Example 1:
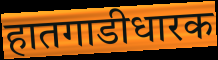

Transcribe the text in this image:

हातगाडीधारक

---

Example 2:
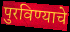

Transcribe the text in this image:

पुरविण्याचे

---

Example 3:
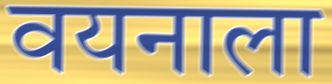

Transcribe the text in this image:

वयनाला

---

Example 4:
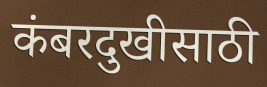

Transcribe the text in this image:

कंबरदुखीसाठी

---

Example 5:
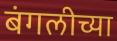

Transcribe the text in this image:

बंगलीच्या